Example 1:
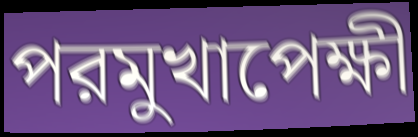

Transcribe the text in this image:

পরমুখাপেক্ষী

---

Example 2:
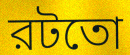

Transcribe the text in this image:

রটতো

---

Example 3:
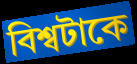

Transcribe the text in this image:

বিশ্বটাকে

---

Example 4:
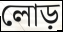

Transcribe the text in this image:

লোড়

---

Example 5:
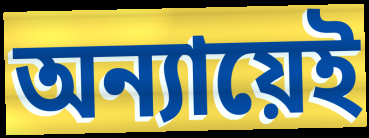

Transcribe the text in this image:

অন্যায়েই